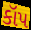
કૉપ